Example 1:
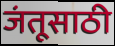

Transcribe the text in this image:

जंतूसाठी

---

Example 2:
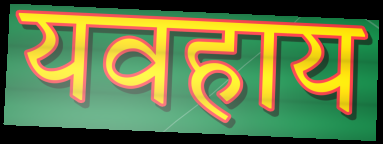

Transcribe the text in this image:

यवहाय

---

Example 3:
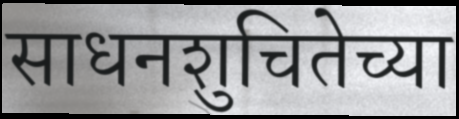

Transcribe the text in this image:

साधनशुचितेच्या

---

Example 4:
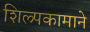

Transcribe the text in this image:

शिल्पकामाने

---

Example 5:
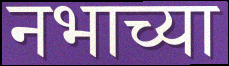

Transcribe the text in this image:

नभाच्या